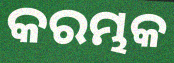
କରମ୍ଭକ